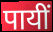
पायीं